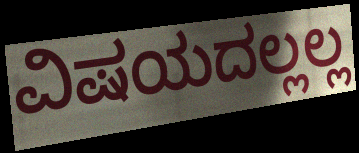
ವಿಷಯದಲ್ಲಲ್ಲ